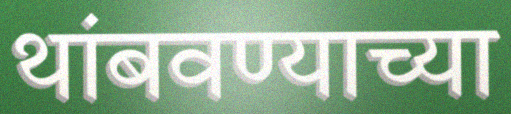
थांबवण्याच्या